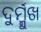
ଦୁର୍ମ୍ମୁଖ